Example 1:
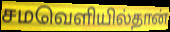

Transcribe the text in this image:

சமவெளியில்தான்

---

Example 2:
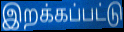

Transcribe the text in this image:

இறக்கப்பட்டு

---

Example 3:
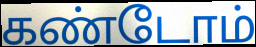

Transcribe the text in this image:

கண்டோம்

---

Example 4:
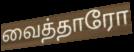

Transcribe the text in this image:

வைத்தாரோ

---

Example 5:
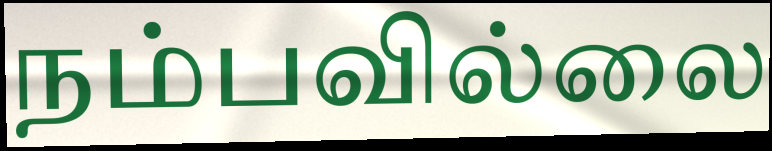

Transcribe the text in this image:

நம்பவில்லை